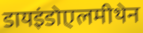
डायइंडोएलमीथेन